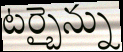
టర్బైన్ను